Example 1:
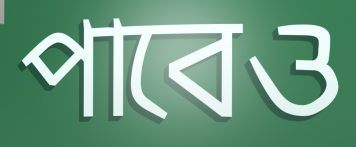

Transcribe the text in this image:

পাবেও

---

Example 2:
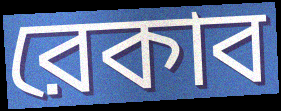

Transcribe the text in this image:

রেকাব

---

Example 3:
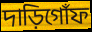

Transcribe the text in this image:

দাড়িগোঁফ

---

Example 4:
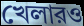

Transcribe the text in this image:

খেলারও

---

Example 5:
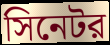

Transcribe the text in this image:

সিনেটর